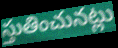
స్తుతించునట్లు